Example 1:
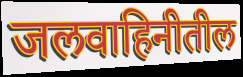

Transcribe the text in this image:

जलवाहिनीतील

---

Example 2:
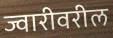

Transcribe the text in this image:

ज्वारीवरील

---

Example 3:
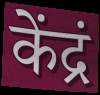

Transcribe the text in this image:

केंद्रं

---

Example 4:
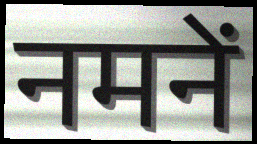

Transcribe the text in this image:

नमनें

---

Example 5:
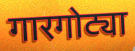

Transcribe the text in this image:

गारगोट्या